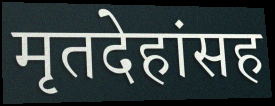
मृतदेहांसह